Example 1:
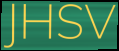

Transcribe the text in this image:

JHSV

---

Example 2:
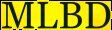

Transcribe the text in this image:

MLBD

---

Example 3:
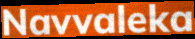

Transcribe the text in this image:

Navvaleka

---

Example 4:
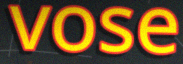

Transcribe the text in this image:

vose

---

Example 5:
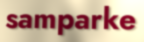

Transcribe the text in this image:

samparke